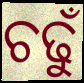
ଚଢୁଁ